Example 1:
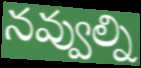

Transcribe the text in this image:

నవ్వుల్ని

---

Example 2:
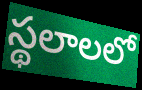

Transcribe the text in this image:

స్థలాలలో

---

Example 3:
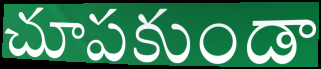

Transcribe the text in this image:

చూపకుండా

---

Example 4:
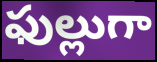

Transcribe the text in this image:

ఫుల్లుగా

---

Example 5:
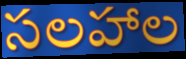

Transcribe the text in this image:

సలహాల